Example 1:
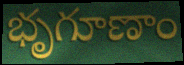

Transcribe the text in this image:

భృగూణాం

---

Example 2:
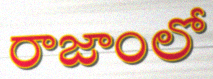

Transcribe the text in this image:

రాజాంలో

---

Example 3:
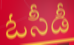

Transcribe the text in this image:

ఓసీడీ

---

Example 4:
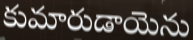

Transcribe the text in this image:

కుమారుడాయెను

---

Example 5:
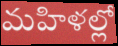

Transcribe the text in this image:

మహిళల్లో